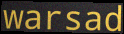
warsad